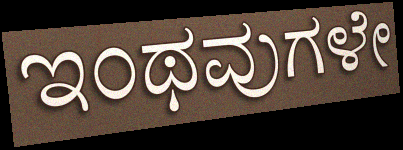
ಇಂಥವುಗಳೇ